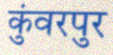
कुंवरपुर